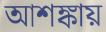
আশঙ্কায়